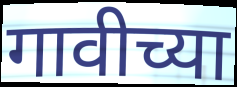
गावीच्या